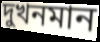
দুখনমান